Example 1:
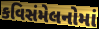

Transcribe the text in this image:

કવિસંમેલનોમાં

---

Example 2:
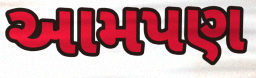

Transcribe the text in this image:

આમપણ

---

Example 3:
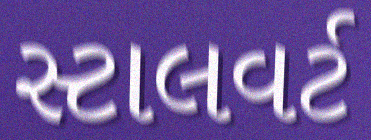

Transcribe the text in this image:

સ્ટાલવર્ટ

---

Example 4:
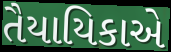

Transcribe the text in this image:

તૈયાયિકાએ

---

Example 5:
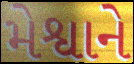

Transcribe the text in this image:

મેશ્વાને